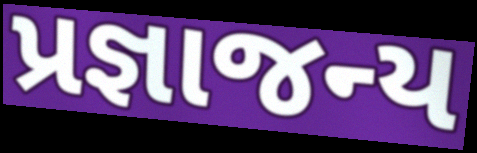
પ્રજ્ઞાજન્ય